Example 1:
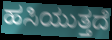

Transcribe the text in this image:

ಹಸಿಯುತ್ತದೆ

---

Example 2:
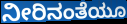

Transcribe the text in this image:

ನೀರಿನಂತೆಯೂ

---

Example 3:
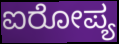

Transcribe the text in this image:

ಐರೋಪ್ಯ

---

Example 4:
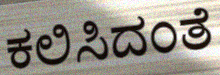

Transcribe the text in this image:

ಕಲಿಸಿದಂತೆ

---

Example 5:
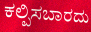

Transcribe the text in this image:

ಕಲ್ಪಿಸಬಾರದು